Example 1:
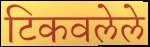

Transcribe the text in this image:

टिकवलेले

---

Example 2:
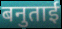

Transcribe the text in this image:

बनुताई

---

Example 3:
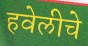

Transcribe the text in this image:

हवेलीचे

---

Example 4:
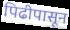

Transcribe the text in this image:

पिढीपासून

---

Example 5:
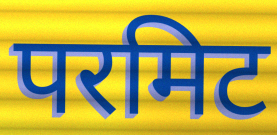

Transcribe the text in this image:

परमिट